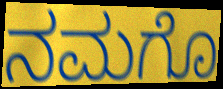
ನಮಗೊ